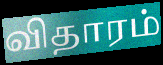
விதாரம்